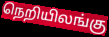
நெறியிலங்கு